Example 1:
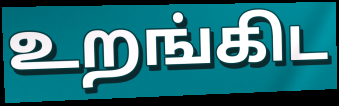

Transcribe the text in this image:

உறங்கிட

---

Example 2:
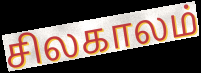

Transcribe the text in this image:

சிலகாலம்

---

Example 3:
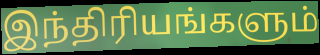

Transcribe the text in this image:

இந்திரியங்களும்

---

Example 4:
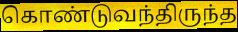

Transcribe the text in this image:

கொண்டுவந்திருந்த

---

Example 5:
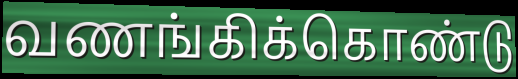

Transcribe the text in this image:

வணங்கிக்கொண்டு